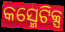
କସ୍ମେଟିକ୍ସ